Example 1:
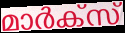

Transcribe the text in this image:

മാർക്‌സ്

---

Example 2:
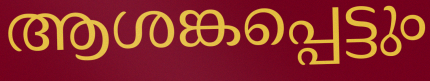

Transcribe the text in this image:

ആശങ്കപ്പെട്ടും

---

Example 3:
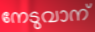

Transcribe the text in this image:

നേടുവാന്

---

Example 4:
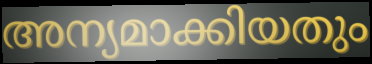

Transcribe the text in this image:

അന്യമാക്കിയതും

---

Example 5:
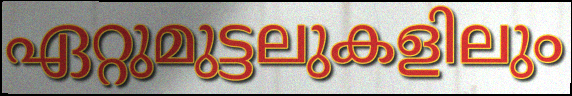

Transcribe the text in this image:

ഏറ്റുമുട്ടലുകളിലും